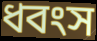
ধবংস